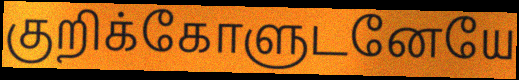
குறிக்கோளுடனேயே